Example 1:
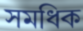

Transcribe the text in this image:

সমধিক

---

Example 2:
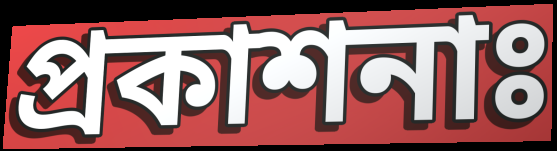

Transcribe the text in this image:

প্রকাশনাঃ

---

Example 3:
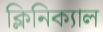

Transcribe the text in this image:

ক্লিনিক্যাল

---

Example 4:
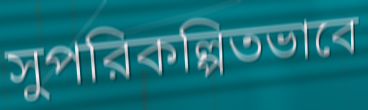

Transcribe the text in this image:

সুপরিকল্পিতভাবে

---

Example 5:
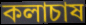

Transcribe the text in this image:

কলাচাষ